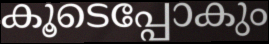
കൂടെപ്പോകും